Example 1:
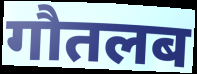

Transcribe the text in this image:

गौतलब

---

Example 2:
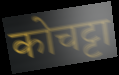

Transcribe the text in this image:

कोचट्टा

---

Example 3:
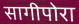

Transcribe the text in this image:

सागीपोरा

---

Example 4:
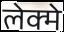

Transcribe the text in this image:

लेक्मे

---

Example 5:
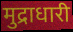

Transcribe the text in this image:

मुद्राधारी